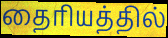
தைரியத்தில்